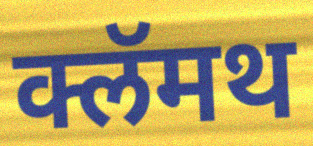
क्लॅमथ